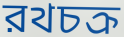
রথচক্র